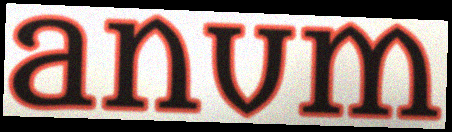
anum